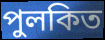
পুলকিত